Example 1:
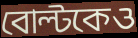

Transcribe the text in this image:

বোল্টকেও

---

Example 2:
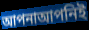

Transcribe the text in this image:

আপনাআপনিই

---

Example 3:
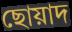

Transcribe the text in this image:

ছোয়াদ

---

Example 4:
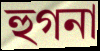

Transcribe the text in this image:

হুগনা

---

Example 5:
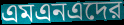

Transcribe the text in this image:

এমএনএদের